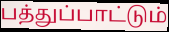
பத்துப்பாட்டும்